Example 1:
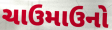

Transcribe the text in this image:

ચાઉમાઉનો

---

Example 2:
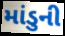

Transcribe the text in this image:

માંડુની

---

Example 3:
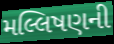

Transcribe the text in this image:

મલ્લિષણની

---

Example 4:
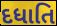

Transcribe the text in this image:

દધાતિ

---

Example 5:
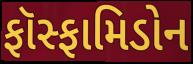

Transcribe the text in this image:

ફૉસ્ફામિડોન